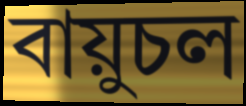
বায়ুচল